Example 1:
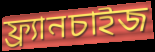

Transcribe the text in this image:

ফ্র্যানচাইজ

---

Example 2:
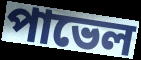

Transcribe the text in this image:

পাভেল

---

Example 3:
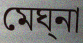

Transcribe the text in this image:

মেঘ্‌না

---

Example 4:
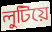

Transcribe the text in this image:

লুটিয়ে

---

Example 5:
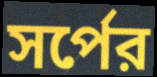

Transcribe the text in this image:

সর্পের